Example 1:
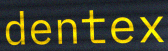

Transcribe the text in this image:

dentex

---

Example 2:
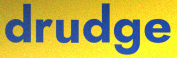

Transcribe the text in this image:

drudge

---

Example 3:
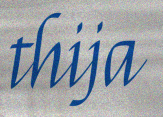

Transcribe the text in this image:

thija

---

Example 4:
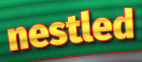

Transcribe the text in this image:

nestled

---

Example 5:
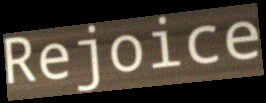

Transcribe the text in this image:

Rejoice